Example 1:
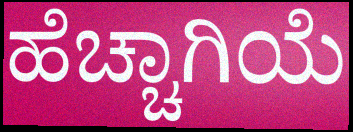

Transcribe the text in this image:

ಹೆಚ್ಚಾಗಿಯೆ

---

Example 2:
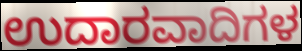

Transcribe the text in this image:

ಉದಾರವಾದಿಗಳ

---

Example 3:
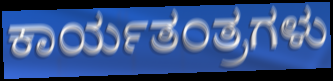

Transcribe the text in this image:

ಕಾರ್ಯತಂತ್ರಗಳು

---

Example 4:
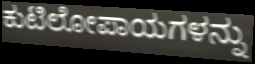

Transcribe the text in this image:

ಕುಟಿಲೋಪಾಯಗಳನ್ನು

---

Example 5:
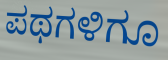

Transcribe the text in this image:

ಪಥಗಳಿಗೂ